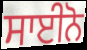
ਸਾਈਨੋ